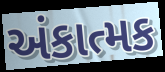
અંકાત્મક